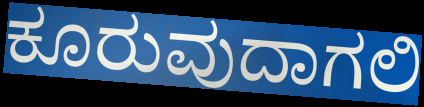
ಕೂರುವುದಾಗಲಿ